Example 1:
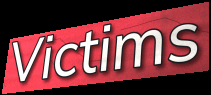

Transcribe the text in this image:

Victims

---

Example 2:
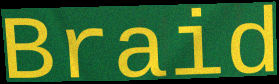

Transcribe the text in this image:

Braid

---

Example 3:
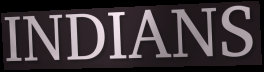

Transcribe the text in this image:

INDIANS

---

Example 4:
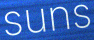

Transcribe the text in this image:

suns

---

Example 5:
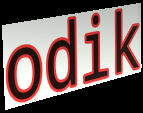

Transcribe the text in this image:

odik